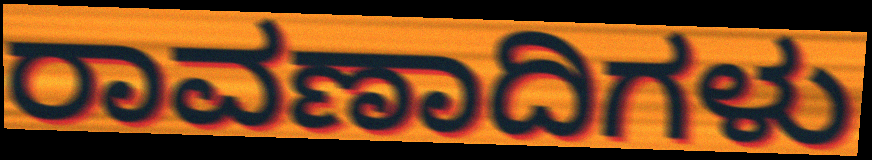
ರಾವಣಾದಿಗಳು